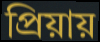
প্রিয়ায়